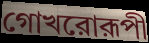
গোখরোরূপী